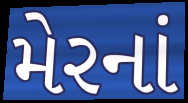
મેરનાં